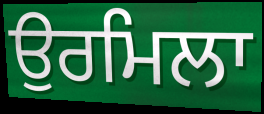
ਉਰਮਿਲਾ